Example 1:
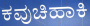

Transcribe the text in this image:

ಕವುಚಿಹಾಕಿ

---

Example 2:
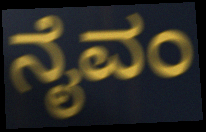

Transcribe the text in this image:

ನೈವಂ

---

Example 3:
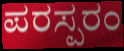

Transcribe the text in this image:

ಪರಸ್ಪರಂ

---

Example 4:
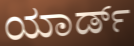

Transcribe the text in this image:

ಯಾರ್ಡ್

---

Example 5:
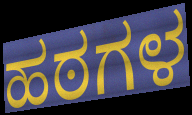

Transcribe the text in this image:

ಹಠಗಳ